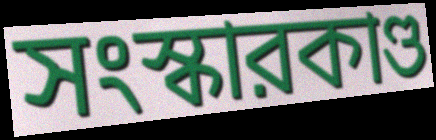
সংস্কারকাণ্ড